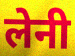
लेनी